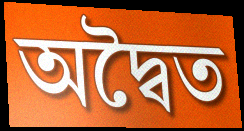
অদ্বৈত